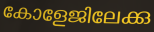
കോളേജിലേക്കു